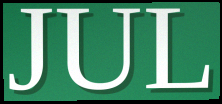
JUL